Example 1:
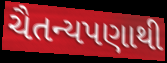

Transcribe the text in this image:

ચૈતન્યપણાથી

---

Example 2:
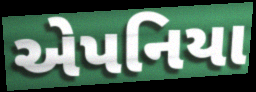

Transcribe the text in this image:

એપનિયા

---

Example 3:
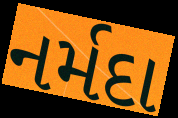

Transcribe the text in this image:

નર્મદા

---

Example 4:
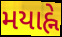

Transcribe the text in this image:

મયાહ્ને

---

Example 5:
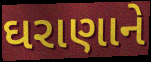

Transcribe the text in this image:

ઘરાણાને